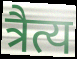
त्रैत्य